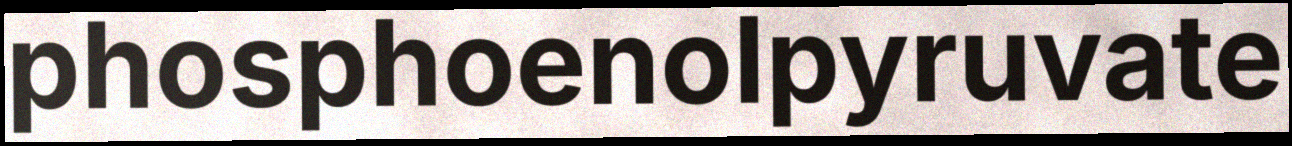
phosphoenolpyruvate